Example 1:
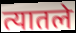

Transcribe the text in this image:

त्यातले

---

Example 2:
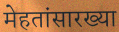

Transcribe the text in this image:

मेहतांसारख्या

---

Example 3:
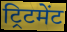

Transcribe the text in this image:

ट्रिटमेंट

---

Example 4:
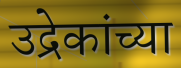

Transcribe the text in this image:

उद्रेकांच्या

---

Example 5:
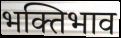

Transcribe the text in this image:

भक्तिभाव